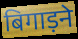
बिगाड़ने